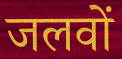
जलवों